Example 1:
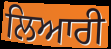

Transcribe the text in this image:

ਲਿਆਰੀ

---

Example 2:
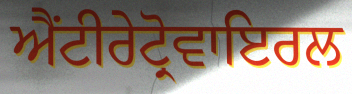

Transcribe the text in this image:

ਐਂਟੀਰੇਟ੍ਰੋਵਾਇਰਲ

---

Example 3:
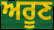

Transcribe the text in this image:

ਅਰੂਣ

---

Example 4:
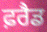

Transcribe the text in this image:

ਫ਼ਰੈਡ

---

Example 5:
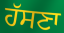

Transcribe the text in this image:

ਹੱਸਣਾ